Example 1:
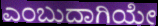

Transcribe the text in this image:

ಎಂಬುದಾಗಿಯೇ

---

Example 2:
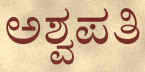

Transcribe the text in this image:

ಅಶ್ವಪತಿ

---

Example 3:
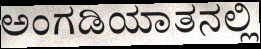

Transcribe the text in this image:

ಅಂಗಡಿಯಾತನಲ್ಲಿ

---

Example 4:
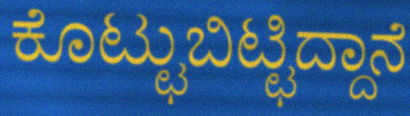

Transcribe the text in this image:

ಕೊಟ್ಟುಬಿಟ್ಟಿದ್ದಾನೆ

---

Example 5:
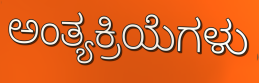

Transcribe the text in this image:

ಅಂತ್ಯಕ್ರಿಯೆಗಳು